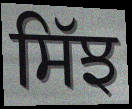
ਸਿੱਝ